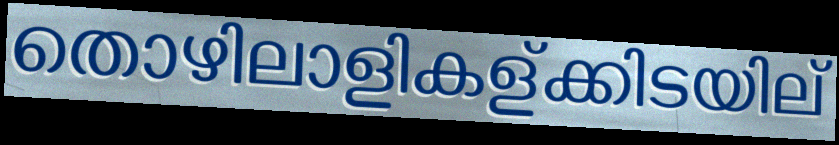
തൊഴിലാളികള്ക്കിടയില്